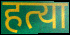
हत्‍या